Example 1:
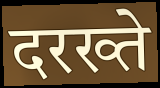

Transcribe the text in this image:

दरख्ते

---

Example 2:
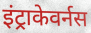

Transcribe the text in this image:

इंट्राकेवर्नस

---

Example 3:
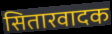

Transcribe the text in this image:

सितारवादक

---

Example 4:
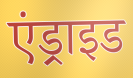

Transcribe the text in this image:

एंड्राइड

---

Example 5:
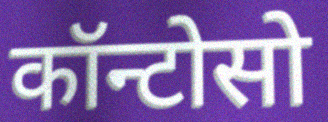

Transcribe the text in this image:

कॉन्टोसो